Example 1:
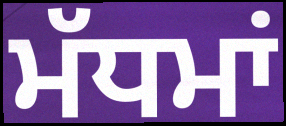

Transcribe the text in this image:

ਮੱਧਮਾਂ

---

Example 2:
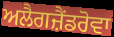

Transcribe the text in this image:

ਅਲੈਗਜ਼ੈਂਡਰੋਵਾ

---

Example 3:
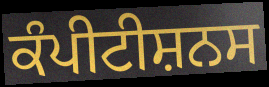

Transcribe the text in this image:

ਕੰਪੀਟੀਸ਼ਨਸ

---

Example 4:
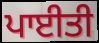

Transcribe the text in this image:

ਪਾਈਤੀ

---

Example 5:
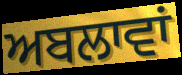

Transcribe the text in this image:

ਅਬਲਾਵਾਂ